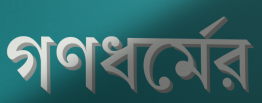
গণধর্মের